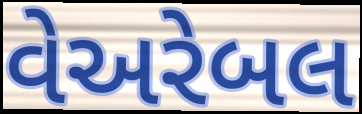
વેઅરેબલ